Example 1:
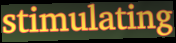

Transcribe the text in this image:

stimulating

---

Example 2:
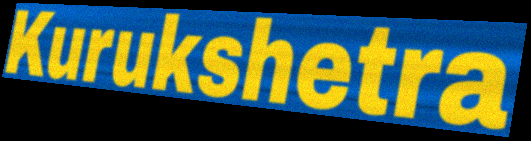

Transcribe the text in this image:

Kurukshetra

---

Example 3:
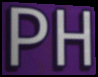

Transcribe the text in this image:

PH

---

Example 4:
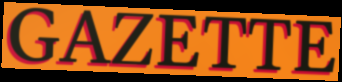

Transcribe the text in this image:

GAZETTE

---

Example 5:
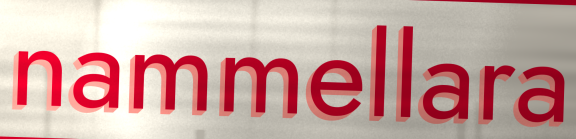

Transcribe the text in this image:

nammellara